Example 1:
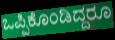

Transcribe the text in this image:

ಒಪ್ಪಿಕೊಂಡಿದ್ದರೂ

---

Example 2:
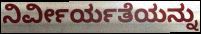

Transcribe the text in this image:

ನಿರ್ವೀರ್ಯತೆಯನ್ನು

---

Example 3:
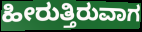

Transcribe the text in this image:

ಹೀರುತ್ತಿರುವಾಗ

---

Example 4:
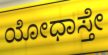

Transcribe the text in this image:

ಯೋಧಾಸ್ತೇ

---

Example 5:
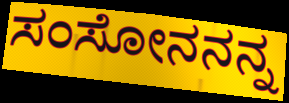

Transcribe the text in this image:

ಸಂಸೋನನನ್ನ